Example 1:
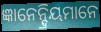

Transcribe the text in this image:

ଜ୍ଞାନେନ୍ଦ୍ରିୟମାନେ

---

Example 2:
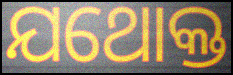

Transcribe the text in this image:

ଯଥୋକ୍ତ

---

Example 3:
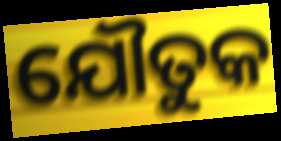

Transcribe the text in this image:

ଯୌତୁକ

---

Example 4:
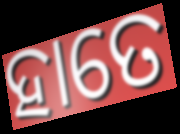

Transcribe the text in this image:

ହାତେ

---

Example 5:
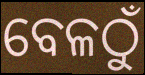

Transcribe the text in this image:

ବେଳଠୁଁ